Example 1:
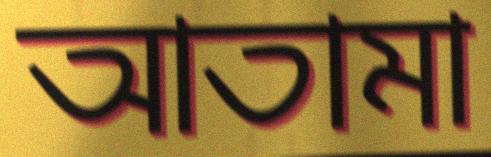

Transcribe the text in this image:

আতামা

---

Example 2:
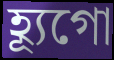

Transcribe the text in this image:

হ্যূগো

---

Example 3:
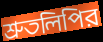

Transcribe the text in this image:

শ্রুতলিপির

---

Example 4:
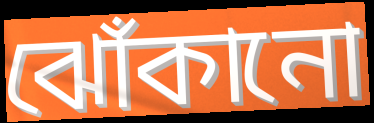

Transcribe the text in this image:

ঝোঁকানো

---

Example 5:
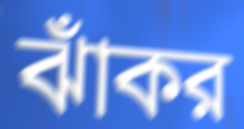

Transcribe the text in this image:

ঝাঁকর